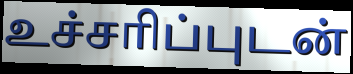
உச்சரிப்புடன்